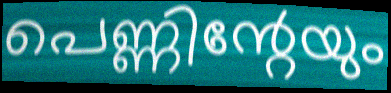
പെണ്ണിന്റേയും